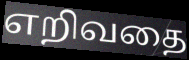
எறிவதை